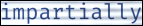
impartially